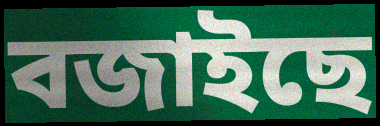
বজাইছে